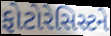
ફોટોરેસિસ્ટને